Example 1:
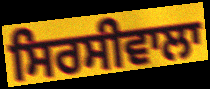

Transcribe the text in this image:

ਸਿਰਸੀਵਾਲਾ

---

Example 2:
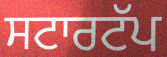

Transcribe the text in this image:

ਸਟਾਰਟੱਪ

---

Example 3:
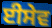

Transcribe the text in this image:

ਈਸੇਵ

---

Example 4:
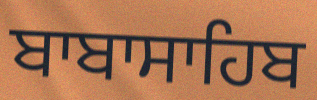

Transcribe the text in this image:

ਬਾਬਾਸਾਹਿਬ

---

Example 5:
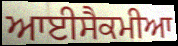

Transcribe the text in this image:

ਆਈਸੈਕਮੀਆ